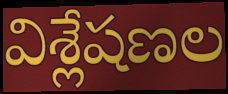
విశ్లేషణల